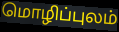
மொழிப்புலம்